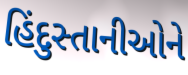
હિંદુસ્તાનીઓને